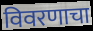
विवरणाचा